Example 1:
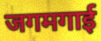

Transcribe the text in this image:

जगमगाई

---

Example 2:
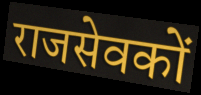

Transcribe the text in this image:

राजसेवकों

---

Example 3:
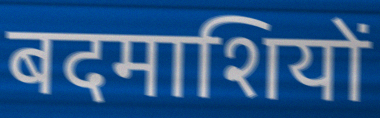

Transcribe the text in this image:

बदमाशियों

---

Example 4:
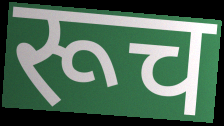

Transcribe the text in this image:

रूच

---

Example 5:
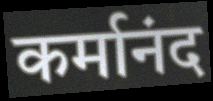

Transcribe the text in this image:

कर्मानंद